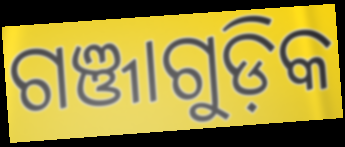
ଗଞ୍ଜାଗୁଡ଼ିକ